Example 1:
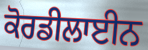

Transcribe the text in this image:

ਕੋਰਡੀਲਾਈਨ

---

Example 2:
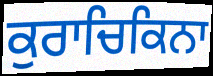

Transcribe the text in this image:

ਕੁਰਾਚਿਕਿਨਾ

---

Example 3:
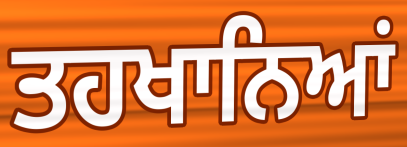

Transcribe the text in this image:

ਤਹਖਾਨਿਆਂ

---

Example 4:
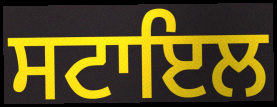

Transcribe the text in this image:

ਸਟਾਇਲ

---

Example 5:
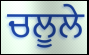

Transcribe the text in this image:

ਚਲੂਲੇ